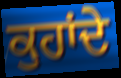
ਕੁਹਾਂਦੇ